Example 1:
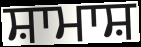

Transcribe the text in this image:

ਸ਼ਾਮਾਸ਼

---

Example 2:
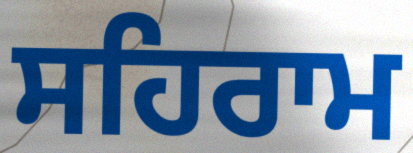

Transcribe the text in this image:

ਸਹਿਰਾਮ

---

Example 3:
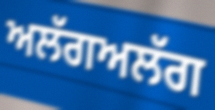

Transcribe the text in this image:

ਅਲੱਗਅਲੱਗ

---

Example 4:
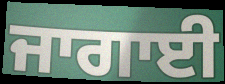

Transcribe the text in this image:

ਜਾਗਾਈ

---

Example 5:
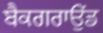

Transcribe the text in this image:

ਬੈਕਗਰਾਉਂਡ